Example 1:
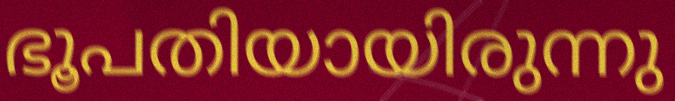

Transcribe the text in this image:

ഭൂപതിയായിരുന്നു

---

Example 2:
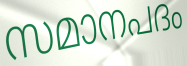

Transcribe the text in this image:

സമാനപദം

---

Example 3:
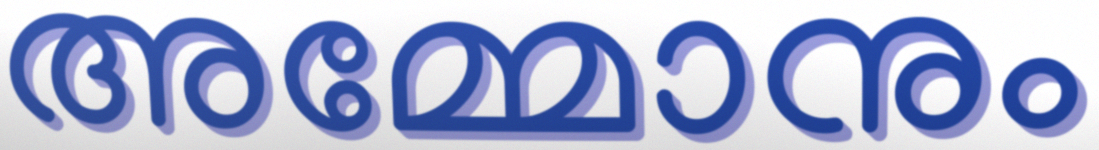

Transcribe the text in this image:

അമ്മോനും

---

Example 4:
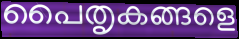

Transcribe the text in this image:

പൈതൃകങ്ങളെ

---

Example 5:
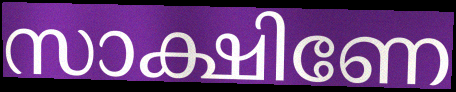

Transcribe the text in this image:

സാക്ഷിണേ